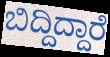
ಬಿದ್ದಿದ್ದಾರೆ